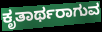
ಕೃತಾರ್ಥರಾಗುವ